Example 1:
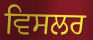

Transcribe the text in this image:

ਵਿਸਲਰ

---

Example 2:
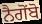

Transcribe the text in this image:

ਨੈਗੋਂਬੋ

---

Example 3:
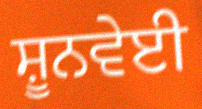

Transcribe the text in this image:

ਸ਼ੂਨਵੇਈ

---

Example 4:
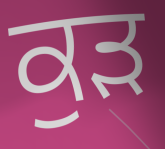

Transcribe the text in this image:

ਕੁੜ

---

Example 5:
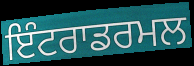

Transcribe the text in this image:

ਇੰਟਰਾਡਰਮਲ